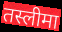
तस्लीमा